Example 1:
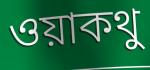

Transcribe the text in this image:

ওয়াকথু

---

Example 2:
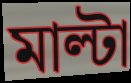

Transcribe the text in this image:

মাল্টা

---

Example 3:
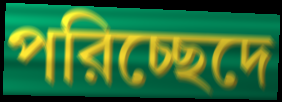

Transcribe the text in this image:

পরিচ্ছেদে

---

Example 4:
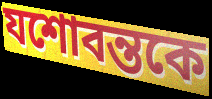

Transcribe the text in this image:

যশোবন্তকে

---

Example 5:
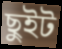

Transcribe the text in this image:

ছুইট